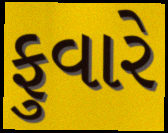
ફુવારે